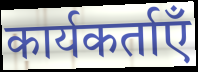
कार्यकर्ताएँ